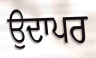
ਉਦਾਪਰ